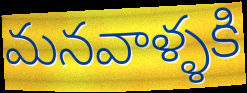
మనవాళ్ళకి